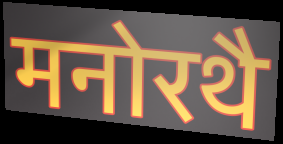
मनोरथै